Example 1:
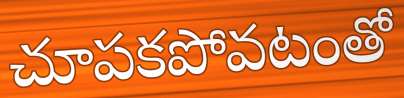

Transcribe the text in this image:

చూపకపోవటంతో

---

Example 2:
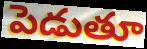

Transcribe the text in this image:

పెడుతూ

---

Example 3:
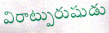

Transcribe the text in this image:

విరాట్పురుషుడు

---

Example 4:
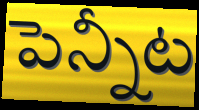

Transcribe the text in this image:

పెన్నీట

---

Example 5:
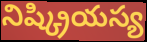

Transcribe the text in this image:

నిష్క్రియస్య